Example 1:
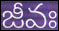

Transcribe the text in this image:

జీవః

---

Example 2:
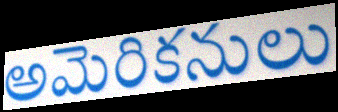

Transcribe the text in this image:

అమెరికనులు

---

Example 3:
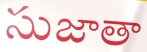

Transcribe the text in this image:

సుజాతా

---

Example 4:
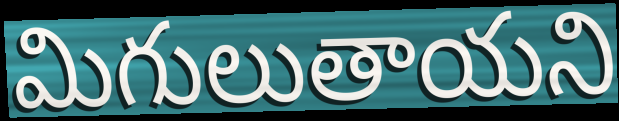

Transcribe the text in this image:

మిగులుతాయని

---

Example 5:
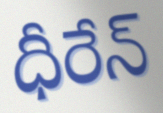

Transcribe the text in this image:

ధీరేన్